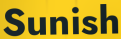
Sunish